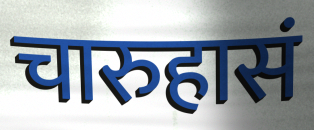
चारुहासं